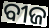
ବୀଜ